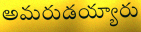
అమరుడయ్యారు